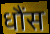
धौंस